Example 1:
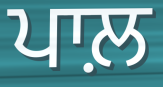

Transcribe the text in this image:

ਪਾਲ਼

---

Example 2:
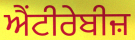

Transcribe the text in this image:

ਐਂਟੀਰੇਬੀਜ਼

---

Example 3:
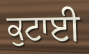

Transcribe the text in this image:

ਕੁਟਾਈ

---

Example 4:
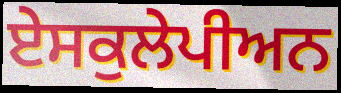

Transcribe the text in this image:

ਏਸਕੁਲੇਪੀਅਨ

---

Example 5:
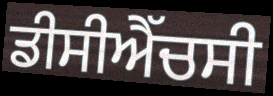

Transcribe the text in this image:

ਡੀਸੀਐੱਚਸੀ